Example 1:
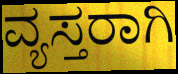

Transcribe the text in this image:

ವ್ಯಸ್ತರಾಗಿ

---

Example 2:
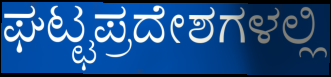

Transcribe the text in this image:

ಘಟ್ಟಪ್ರದೇಶಗಳಲ್ಲಿ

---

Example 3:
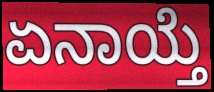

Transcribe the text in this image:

ಏನಾಯ್ತೆ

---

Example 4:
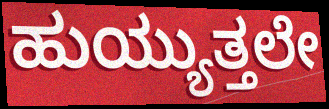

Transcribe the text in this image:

ಹುಯ್ಯುತ್ತಲೇ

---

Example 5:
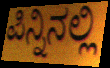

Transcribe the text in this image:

ಪಿನ್ನಿನಲ್ಲಿ